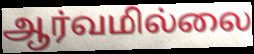
ஆர்வமில்லை